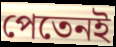
পেতেনই